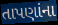
તાપણાંના